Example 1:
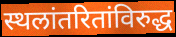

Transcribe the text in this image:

स्थलांतरितांविरुद्ध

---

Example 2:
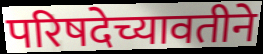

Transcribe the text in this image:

परिषदेच्यावतीने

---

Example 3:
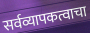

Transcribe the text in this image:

सर्वव्यापकत्वाचा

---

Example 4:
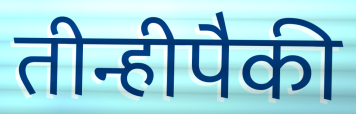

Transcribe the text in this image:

तीन्हीपैकी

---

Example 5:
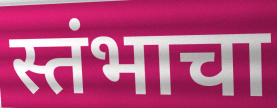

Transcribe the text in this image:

स्तंभाचा